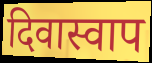
दिवास्वाप